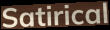
Satirical